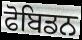
ਫੋਬਿਡਨ